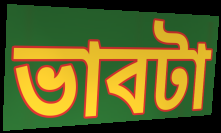
ভাবটা